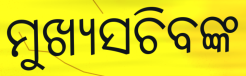
ମୁଖ୍ୟସଚିବଙ୍କ